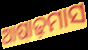
ଆଷାଢ଼ମାସ